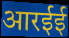
आरईई